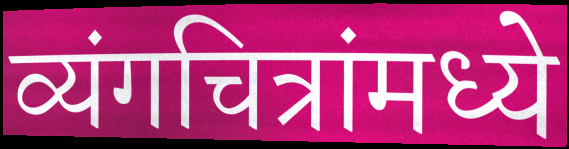
व्यंगचित्रांमध्ये